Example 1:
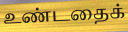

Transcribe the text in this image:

உண்டதைக்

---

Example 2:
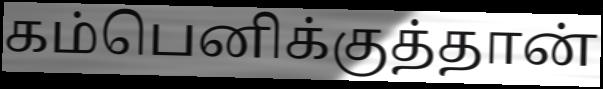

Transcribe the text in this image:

கம்பெனிக்குத்தான்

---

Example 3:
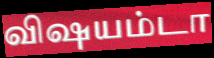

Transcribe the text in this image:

விஷயம்டா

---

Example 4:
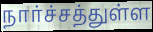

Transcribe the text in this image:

நார்ச்சத்துள்ள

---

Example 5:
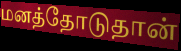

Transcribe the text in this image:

மனத்தோடுதான்